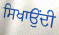
ਸਿਖਾਉਂਦੀ